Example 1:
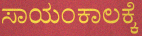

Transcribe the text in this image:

ಸಾಯಂಕಾಲಕ್ಕೆ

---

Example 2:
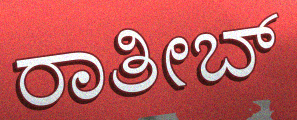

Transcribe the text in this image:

ರಾತೀಬ್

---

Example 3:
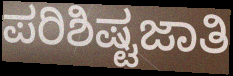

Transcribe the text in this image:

ಪರಿಶಿಷ್ಟಜಾತಿ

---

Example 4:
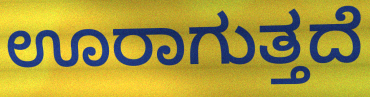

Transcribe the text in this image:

ಊರಾಗುತ್ತದೆ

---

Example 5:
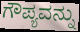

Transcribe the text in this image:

ಗೌಪ್ಯವನ್ನು